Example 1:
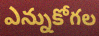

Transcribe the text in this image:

ఎన్నుకోగల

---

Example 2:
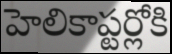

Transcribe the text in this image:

హెలికాప్టర్లోకి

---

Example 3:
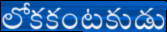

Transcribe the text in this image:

లోకకంటకుడు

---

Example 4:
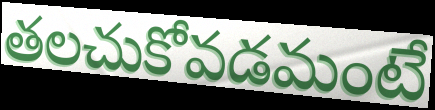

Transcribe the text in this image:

తలచుకోవడమంటే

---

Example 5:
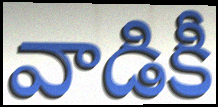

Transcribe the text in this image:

వాడికీ